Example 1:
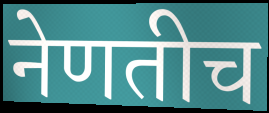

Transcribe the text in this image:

नेणतीच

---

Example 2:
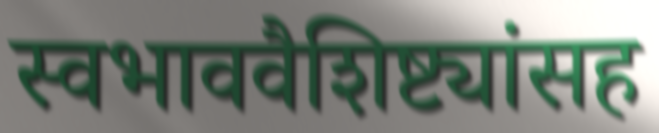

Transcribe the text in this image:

स्वभाववैशिष्ट्यांसह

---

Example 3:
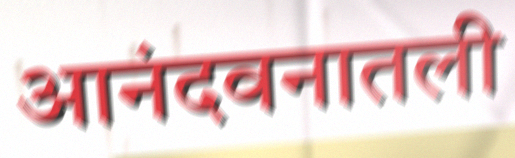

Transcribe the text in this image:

आनंदवनातली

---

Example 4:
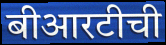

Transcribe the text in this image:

बीआरटीची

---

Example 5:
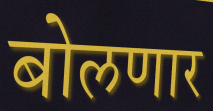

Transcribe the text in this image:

बोलणार